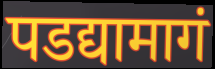
पडद्यामागं